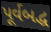
પૂર્વબદ્ધ